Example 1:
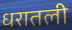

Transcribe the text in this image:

धरातली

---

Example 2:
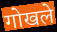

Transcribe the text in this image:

गोखले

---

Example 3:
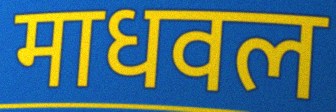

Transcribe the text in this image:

माधवल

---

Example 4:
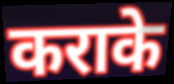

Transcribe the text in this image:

कराके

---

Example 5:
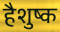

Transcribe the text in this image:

हैशुष्क